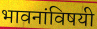
भावनांविषयी